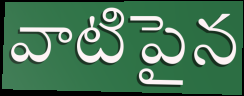
వాటిపైన